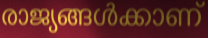
രാജ്യങ്ങൾക്കാണ്